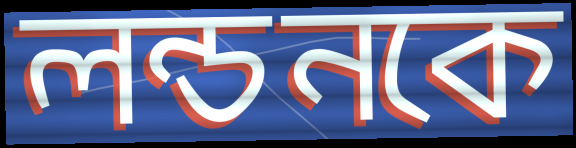
লন্ডনকে